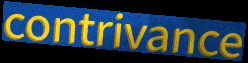
contrivance